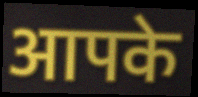
आपके